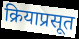
क्रियाप्रसूत